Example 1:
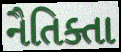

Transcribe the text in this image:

નૈતિક્તા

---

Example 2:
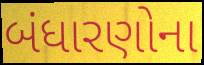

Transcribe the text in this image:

બંધારણોના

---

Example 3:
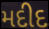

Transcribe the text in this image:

મદીદ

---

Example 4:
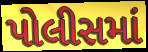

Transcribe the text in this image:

પોલીસમાં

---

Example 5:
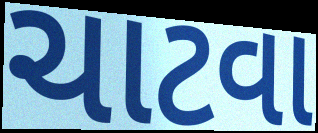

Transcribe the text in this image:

ચાટવા